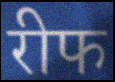
रीफ